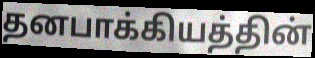
தனபாக்கியத்தின்